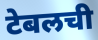
टेबलची